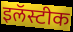
इलॅस्टीक